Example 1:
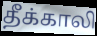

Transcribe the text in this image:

தீக்காலி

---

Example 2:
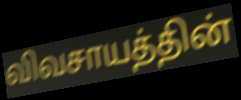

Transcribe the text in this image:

விவசாயத்தின்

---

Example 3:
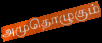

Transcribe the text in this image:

அமுதொழுகும்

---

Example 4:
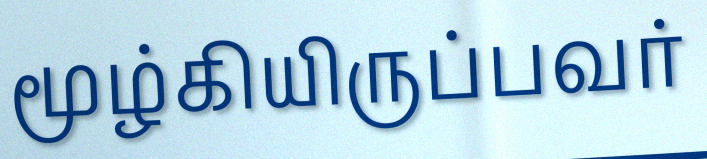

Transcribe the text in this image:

மூழ்கியிருப்பவர்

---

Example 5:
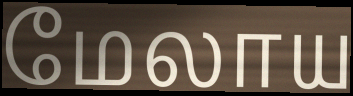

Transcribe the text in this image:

மேலாய